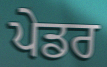
ਪੇਡਰ